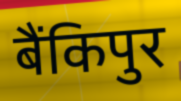
बैंकिपुर